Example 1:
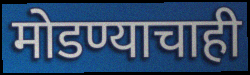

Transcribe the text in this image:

मोडण्याचाही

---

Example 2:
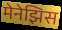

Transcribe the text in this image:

मेनेझिस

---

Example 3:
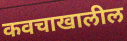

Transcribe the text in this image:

कवचाखालील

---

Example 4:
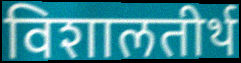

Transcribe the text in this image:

विशालतीर्थ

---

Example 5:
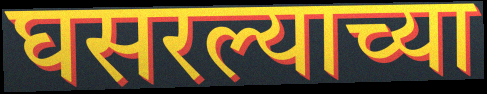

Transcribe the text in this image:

घसरल्याच्या